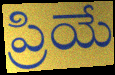
ప్రియే